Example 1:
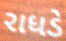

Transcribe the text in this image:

રાધડે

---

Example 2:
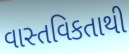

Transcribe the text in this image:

વાસ્તવિકતાથી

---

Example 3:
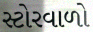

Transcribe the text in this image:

સ્ટોરવાળો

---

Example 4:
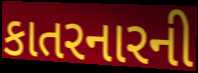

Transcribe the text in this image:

કાતરનારની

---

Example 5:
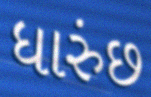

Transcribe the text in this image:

ધારુંછ